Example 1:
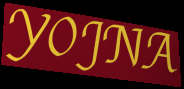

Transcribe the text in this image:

YOJNA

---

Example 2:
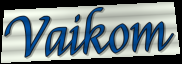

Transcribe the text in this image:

Vaikom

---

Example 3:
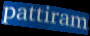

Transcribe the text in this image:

pattiram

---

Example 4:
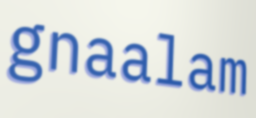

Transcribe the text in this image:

gnaalam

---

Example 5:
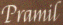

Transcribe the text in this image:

Pramil